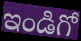
ఇండిగో